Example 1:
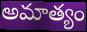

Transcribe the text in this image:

అమాత్యం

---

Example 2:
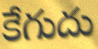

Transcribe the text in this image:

కేగుదు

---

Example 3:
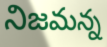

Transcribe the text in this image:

నిజమన్న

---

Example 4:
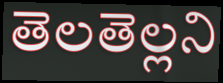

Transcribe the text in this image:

తెలతెల్లని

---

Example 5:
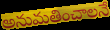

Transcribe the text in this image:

అనుమతించాలనే